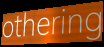
othering